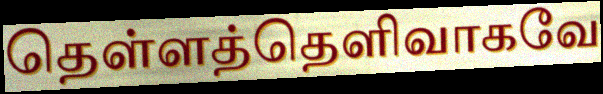
தெள்ளத்தெளிவாகவே